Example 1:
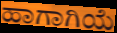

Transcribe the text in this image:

ಹಾಗಾಗಿಯೆ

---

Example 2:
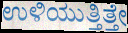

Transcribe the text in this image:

ಉಳಿಯುತ್ತಿತ್ತೇ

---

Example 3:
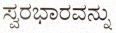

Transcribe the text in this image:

ಸ್ವರಭಾರವನ್ನು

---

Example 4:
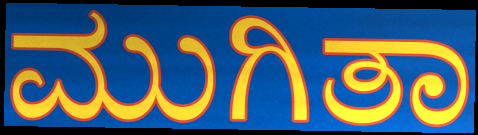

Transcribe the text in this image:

ಮುಗಿತಾ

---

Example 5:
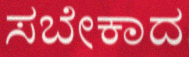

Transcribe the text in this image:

ಸಬೇಕಾದ